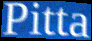
Pitta